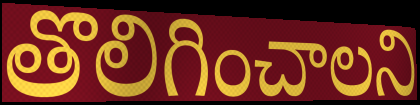
తొలిగించాలని